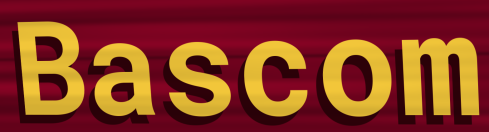
Bascom